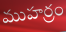
ముహర్రం